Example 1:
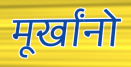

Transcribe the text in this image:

मूर्खांनो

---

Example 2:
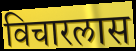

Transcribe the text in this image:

विचारलास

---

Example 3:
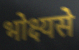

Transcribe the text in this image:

भोक्ष्यसे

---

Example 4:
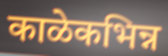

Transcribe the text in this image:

काळेकभिन्न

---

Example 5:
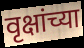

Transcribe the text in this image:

वृक्षांच्या